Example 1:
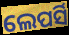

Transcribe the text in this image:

ଲେପର୍ସି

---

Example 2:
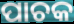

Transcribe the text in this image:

ପାଚକ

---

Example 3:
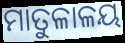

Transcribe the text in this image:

ମାତୁଳାଳୟ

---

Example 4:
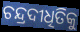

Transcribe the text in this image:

ଚନ୍ଦ୍ରଦୀଧିତିକୁ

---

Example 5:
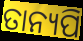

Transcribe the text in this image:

ତାନ୍ୟପି